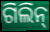
ଗିଲିନ୍